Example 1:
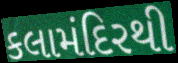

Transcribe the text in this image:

કલામંદિરથી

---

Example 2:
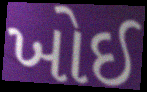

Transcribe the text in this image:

ખોઈ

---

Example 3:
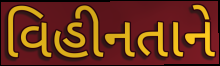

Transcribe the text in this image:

વિહીનતાને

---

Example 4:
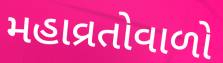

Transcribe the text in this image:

મહાવ્રતોવાળો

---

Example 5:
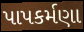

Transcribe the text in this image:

પાપકર્મણા